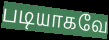
படியாகவே